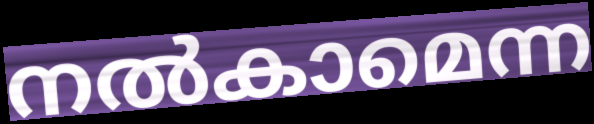
നൽകാമെന്ന